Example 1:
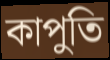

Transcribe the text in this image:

কাপুতি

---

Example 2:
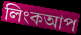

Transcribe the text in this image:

লিংকআপ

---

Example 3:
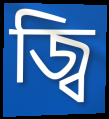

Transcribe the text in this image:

জ্বি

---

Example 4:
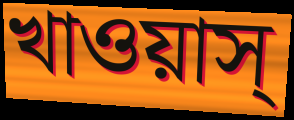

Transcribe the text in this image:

খাওয়াস্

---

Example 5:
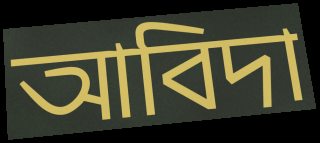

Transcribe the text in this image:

আবিদা